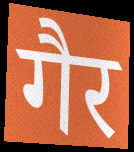
गैर